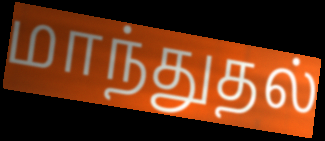
மாந்துதல்